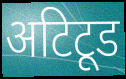
अटिटूड